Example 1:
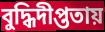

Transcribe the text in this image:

বুদ্ধিদীপ্ততায়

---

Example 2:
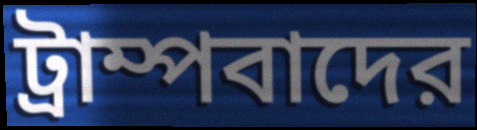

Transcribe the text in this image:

ট্রাম্পবাদের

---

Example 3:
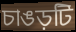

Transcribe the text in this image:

চাঙড়টি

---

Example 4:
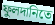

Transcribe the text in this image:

ফুলদানিতে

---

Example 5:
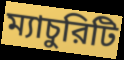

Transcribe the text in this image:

ম্যাচুরিটি